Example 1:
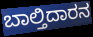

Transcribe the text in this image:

ಬಾಲ್ತಿದಾರನ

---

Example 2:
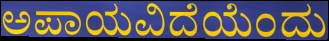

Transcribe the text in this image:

ಅಪಾಯವಿದೆಯೆಂದು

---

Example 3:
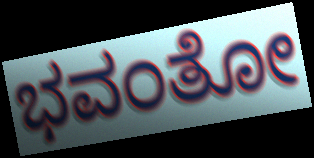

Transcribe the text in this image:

ಭವಂತೋ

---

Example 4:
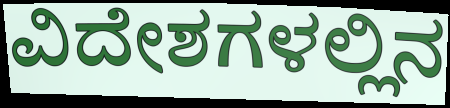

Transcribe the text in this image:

ವಿದೇಶಗಳಲ್ಲಿನ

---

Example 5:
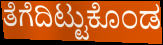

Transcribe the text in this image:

ತೆಗೆದಿಟ್ಟುಕೊಂಡ